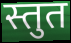
स्तुत